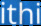
ithi